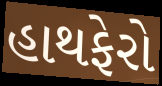
હાથફેરો